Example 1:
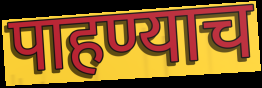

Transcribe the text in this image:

पाहण्याच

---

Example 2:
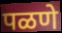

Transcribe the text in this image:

पळणे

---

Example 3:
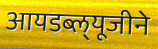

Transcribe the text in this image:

आयडब्ल्यूजीने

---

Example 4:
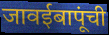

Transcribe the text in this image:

जावईबापूंची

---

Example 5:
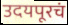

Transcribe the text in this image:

उदयपूरचं